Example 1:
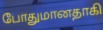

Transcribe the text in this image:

போதுமானதாகி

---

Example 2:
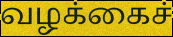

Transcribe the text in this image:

வழக்கைச்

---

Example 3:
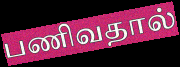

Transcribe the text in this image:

பணிவதால்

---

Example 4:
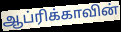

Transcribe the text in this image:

ஆப்ரிக்காவின்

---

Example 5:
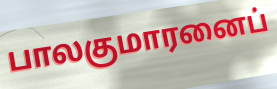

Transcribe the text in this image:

பாலகுமாரனைப்